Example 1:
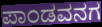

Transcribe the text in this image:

ಪಾಂಡವನಗ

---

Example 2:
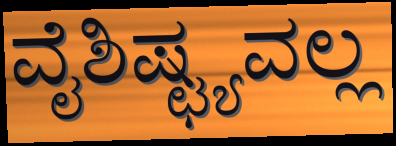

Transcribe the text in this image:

ವೈಶಿಷ್ಟ್ಯವಲ್ಲ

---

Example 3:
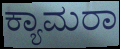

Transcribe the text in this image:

ಕ್ಯಾಮರಾ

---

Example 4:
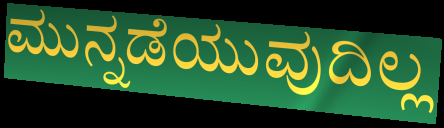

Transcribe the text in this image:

ಮುನ್ನಡೆಯುವುದಿಲ್ಲ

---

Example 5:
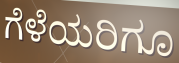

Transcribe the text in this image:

ಗೆಳೆಯರಿಗೂ